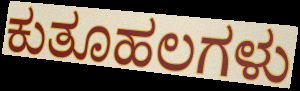
ಕುತೂಹಲಗಳು